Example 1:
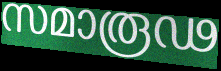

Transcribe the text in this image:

സമാരൂഢ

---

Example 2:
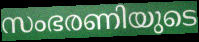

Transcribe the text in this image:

സംഭരണിയുടെ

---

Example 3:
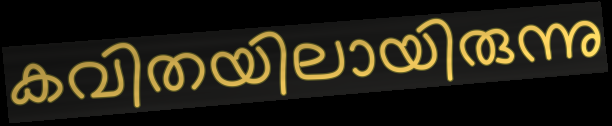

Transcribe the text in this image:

കവിതയിലായിരുന്നു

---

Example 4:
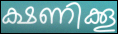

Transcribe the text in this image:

ക്ഷണിക്കൂ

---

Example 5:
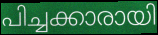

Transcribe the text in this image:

പിച്ചക്കാരായി